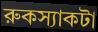
রুকস্যাকটা